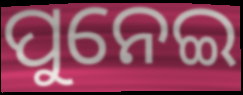
ପୁନେଇ